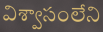
విశ్వాసంలేని